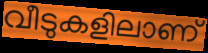
വീടുകളിലാണ്